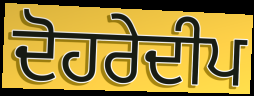
ਦੋਹਰੇਦੀਪ